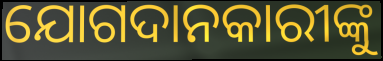
ଯୋଗଦାନକାରୀଙ୍କୁ